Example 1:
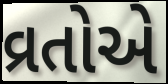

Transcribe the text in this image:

વ્રતોએ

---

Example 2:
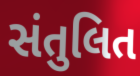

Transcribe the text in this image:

સંતુલિત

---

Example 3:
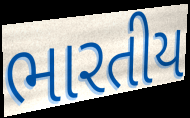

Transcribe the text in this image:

ભારતીય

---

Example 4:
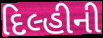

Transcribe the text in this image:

દિલ્હીની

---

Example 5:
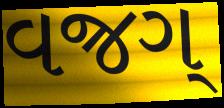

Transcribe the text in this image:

વજ્રગ્